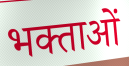
भक्ताओं